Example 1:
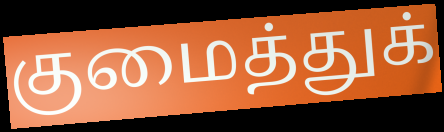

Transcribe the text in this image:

குமைத்துக்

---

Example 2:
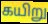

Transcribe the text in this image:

கயிறு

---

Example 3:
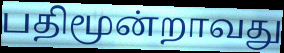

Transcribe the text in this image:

பதிமூன்றாவது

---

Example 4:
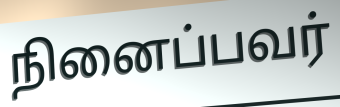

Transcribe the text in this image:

நினைப்பவர்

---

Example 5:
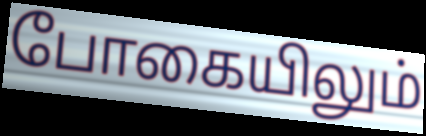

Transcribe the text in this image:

போகையிலும்